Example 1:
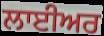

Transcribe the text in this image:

ਲਾਈਅਰ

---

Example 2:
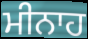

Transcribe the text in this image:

ਮੀਨਾਹ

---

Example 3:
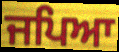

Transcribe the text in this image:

ਜਪਿਆ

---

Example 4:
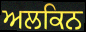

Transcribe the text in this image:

ਅਲਕਿਨ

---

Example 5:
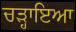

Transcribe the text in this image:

ਚੜ੍ਹਾਇਆ